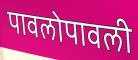
पावलोपावली